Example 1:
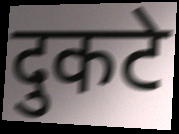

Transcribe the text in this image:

दुकटे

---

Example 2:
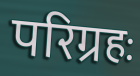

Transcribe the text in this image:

परिग्रहः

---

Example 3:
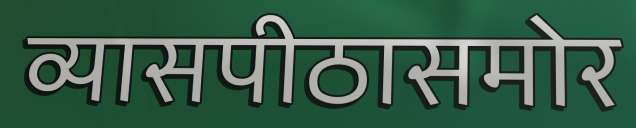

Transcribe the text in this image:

व्यासपीठासमोर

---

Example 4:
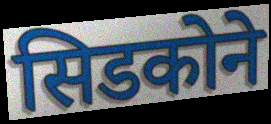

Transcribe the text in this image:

सिडकोने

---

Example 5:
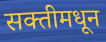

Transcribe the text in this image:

सक्तीमधून